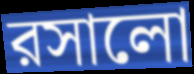
রসালো